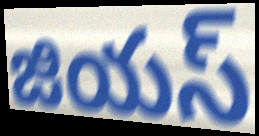
జియస్